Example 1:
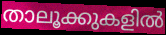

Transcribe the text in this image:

താലൂക്കുകളിൽ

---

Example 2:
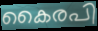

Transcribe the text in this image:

കൈരപി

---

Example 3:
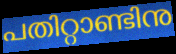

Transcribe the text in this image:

പതിറ്റാണ്ടിനു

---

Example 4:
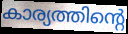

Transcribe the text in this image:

കാര്യത്തിന്റെ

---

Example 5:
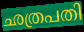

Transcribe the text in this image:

ഛത്രപതി